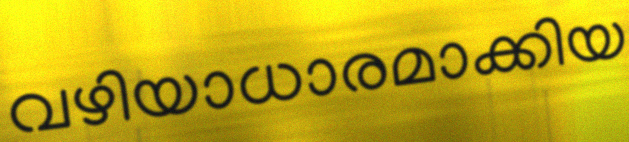
വഴിയാധാരമാക്കിയ